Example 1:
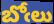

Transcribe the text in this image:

బోఁలు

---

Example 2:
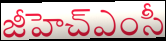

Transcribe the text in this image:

జీహెచ్ఎంసీ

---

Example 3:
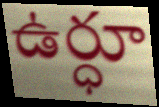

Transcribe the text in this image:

ఉర్ధూ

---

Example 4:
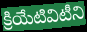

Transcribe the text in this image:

క్రియేటివిటీని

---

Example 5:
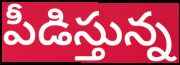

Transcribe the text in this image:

పీడిస్తున్న